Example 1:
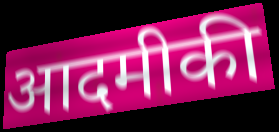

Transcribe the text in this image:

आदमीकी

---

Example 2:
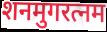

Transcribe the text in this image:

शनमुगरत्नम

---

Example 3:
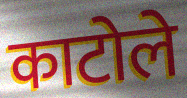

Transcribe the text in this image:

काटोले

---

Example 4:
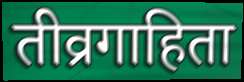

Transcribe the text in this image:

तीव्रगाहिता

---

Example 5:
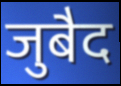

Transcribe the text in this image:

जुबैद